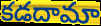
కడదామా